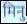
मिनु